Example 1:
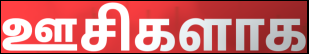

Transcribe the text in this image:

ஊசிகளாக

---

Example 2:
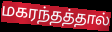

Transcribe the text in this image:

மகரந்தத்தால்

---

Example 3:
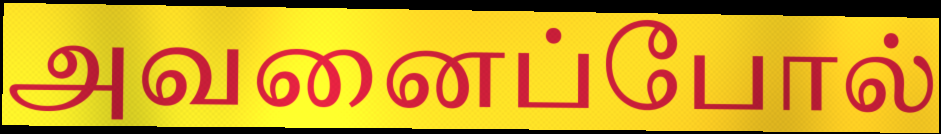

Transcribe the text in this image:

அவனைப்போல்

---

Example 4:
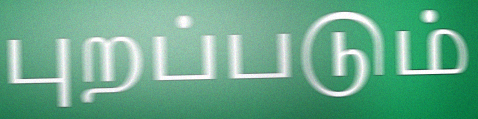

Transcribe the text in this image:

புறப்படும்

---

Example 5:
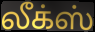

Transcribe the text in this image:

லீக்ஸ்